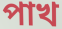
পাখ